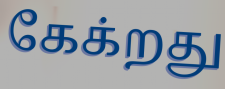
கேக்றது